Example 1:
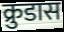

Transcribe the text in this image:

क्रुडास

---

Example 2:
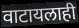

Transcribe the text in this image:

वाटायलाही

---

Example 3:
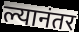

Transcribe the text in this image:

ल्यानंतर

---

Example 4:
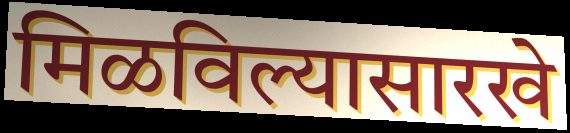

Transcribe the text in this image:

मिळविल्यासारखे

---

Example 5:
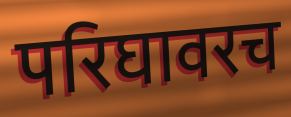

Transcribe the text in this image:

परिघावरच